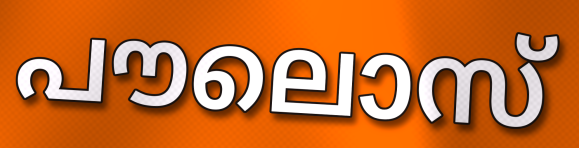
പൗലൊസ്